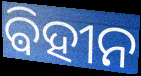
ଵିହୀନ